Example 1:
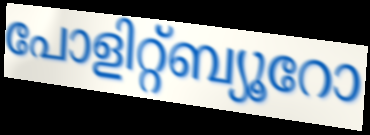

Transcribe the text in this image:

പോളിറ്റ്ബ്യൂറോ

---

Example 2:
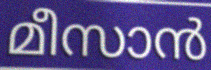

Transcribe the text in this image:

മീസാൻ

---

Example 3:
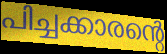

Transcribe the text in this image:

പിച്ചക്കാരന്റെ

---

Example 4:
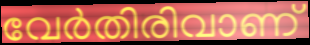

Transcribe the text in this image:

വേർതിരിവാണ്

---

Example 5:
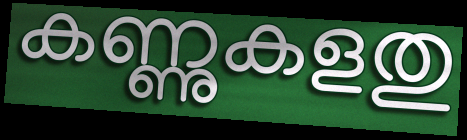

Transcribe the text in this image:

കണ്ണുകളതു